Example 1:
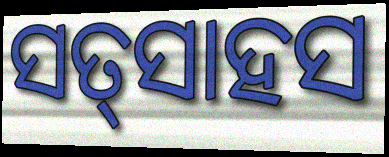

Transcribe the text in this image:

ସତ୍‍ସାହସ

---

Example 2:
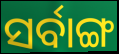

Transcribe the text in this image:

ସର୍ବାଙ୍ଗ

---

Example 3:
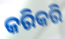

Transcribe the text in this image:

କରିକରି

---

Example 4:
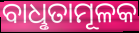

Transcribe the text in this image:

ବାଧୢତାମୂଳକ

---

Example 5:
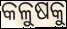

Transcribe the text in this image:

କଳୁଷକୁ